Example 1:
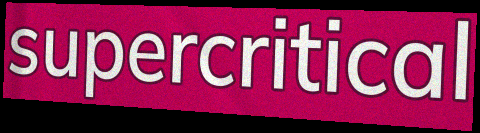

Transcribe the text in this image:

supercritical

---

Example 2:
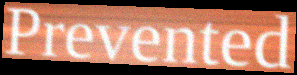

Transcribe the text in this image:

Prevented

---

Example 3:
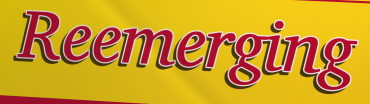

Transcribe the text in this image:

Reemerging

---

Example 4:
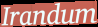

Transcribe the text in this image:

Irandum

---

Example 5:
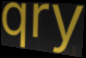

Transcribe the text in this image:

qry